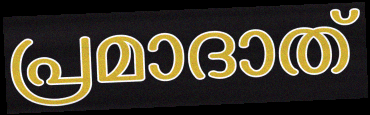
പ്രമാദാത്